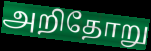
அறிதோறு